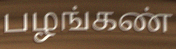
பழங்கண்